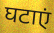
घटाएं